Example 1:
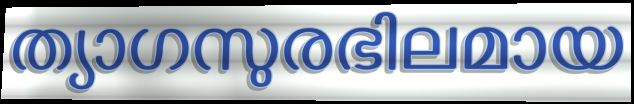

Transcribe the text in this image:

ത്യാഗസുരഭിലമായ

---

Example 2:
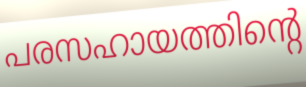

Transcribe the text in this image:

പരസഹായത്തിന്റെ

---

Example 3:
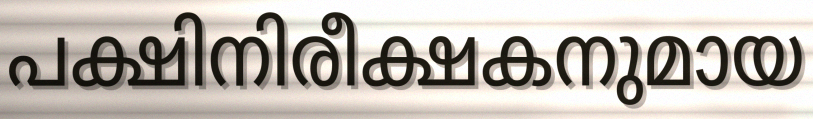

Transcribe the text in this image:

പക്ഷിനിരീക്ഷകനുമായ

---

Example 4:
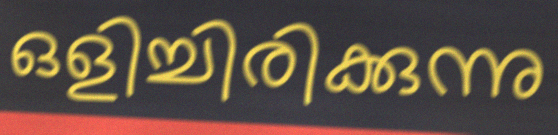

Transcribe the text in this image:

ഒളിച്ചിരിക്കുന്നു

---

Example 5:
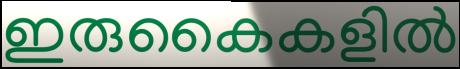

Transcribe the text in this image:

ഇരുകൈകളിൽ